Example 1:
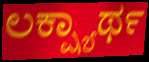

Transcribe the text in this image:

ಲಕ್ಷ್ಯಾರ್ಥ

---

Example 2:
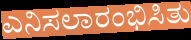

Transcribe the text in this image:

ಎನಿಸಲಾರಂಭಿಸಿತು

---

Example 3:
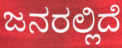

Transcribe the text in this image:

ಜನರಲ್ಲಿದೆ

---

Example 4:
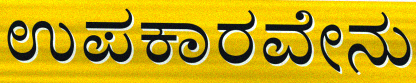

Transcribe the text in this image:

ಉಪಕಾರವೇನು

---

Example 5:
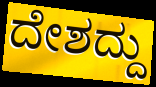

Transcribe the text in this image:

ದೇಶದ್ದು